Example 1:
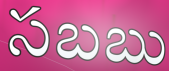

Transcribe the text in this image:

సబబు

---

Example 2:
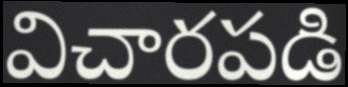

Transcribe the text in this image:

విచారపడి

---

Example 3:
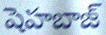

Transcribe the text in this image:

షెహబాజ్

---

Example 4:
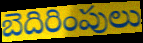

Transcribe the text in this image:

బెదిరింపులు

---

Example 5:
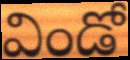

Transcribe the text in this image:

విండో